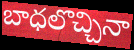
బాధలొచ్చినా